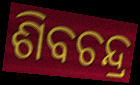
ଶିବଚନ୍ଦ୍ର